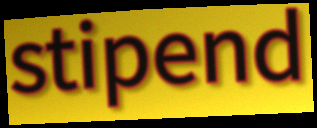
stipend